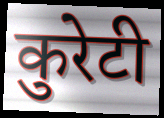
कुरेटी